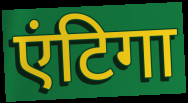
एंटिगा